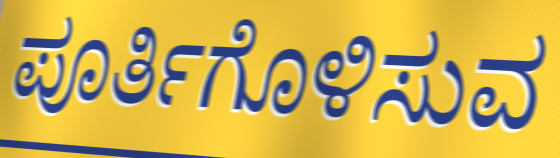
ಪೂರ್ತಿಗೊಳಿಸುವ